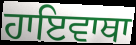
ਹਾਇਵਾਥਾ